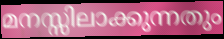
മനസ്സിലാക്കുന്നതും